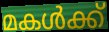
മകൾക്ക്